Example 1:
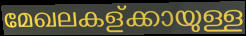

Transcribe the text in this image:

മേഖലകള്ക്കായുള്ള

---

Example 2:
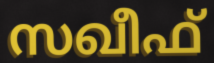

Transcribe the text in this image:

സഖീഫ്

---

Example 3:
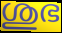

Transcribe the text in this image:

ശുഭ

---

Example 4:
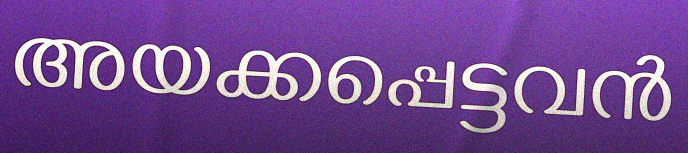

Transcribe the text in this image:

അയക്കപ്പെട്ടവൻ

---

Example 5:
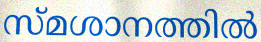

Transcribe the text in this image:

സ്മശാനത്തിൽ